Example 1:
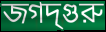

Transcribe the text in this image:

জগদ্‌গুরু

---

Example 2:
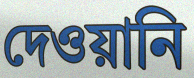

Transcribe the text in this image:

দেওয়ানি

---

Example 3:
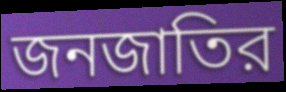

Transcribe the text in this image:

জনজাতির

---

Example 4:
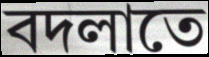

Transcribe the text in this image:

বদলাতে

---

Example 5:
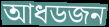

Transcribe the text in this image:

আধডজন